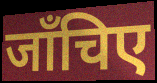
जाँचिए